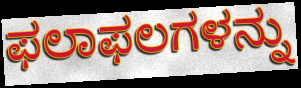
ಫಲಾಫಲಗಳನ್ನು